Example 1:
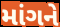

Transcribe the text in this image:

માંગને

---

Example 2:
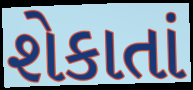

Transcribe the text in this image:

શેકાતાં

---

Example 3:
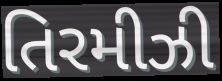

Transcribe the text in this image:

તિરમીઝી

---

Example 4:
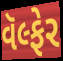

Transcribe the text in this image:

વૅલ્ફેર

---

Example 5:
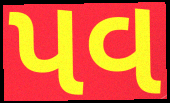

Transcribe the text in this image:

પવ